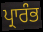
ਪ੍ਰਾਰੰਭ